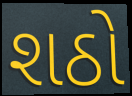
શઠો